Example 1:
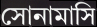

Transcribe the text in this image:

সোনামাসি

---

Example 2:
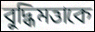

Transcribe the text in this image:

বুদ্ধিমত্তাকে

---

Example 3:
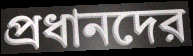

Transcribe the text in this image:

প্রধানদের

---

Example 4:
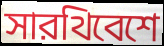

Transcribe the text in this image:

সারথিবেশে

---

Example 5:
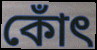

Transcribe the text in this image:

কোঁৎ